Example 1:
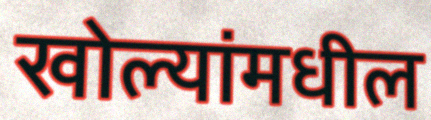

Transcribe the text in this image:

खोल्यांमधील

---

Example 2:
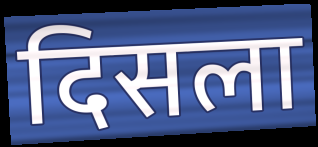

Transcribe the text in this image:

दिसला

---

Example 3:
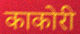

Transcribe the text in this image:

काकोरी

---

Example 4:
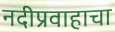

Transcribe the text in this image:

नदीप्रवाहाचा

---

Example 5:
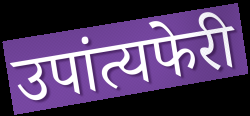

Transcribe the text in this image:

उपांत्यफेरी